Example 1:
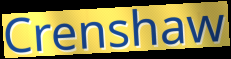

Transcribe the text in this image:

Crenshaw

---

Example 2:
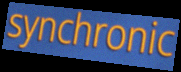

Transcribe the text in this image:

synchronic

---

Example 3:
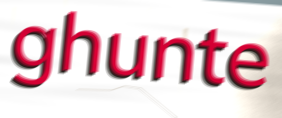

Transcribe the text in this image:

ghunte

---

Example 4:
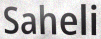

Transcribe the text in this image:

Saheli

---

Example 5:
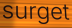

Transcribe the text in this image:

surget